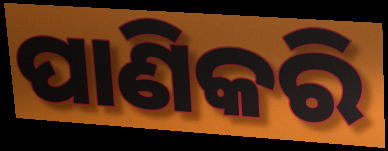
ପାଣିକରି